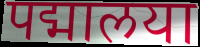
पद्मालया